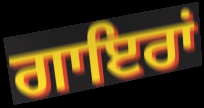
ਗਾਇਰਾਂ